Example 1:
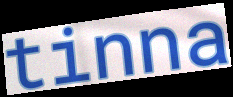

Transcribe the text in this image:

tinna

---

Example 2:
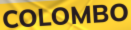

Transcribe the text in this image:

COLOMBO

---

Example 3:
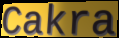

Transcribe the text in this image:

Cakra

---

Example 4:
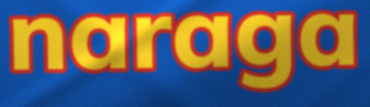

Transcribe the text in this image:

naraga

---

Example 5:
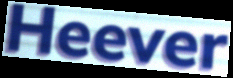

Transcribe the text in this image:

Heever